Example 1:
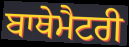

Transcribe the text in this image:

ਬਾਥੇਮੈਟਰੀ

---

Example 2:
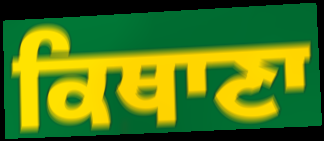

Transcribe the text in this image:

ਕਿਥਾਣਾ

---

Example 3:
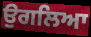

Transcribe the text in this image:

ਉਗਲਿਆ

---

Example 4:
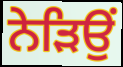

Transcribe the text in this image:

ਨੇੜਿਉਂ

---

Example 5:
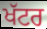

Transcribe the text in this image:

ਖੱਟਰ